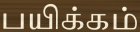
பயிக்கம்